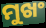
ମୁଖଂ